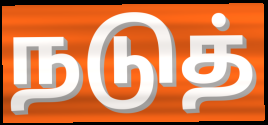
நடுத்